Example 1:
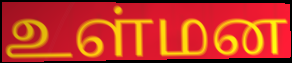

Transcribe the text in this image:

உள்மன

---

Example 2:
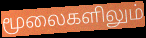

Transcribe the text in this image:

மூலைகளிலும்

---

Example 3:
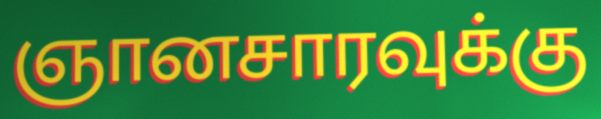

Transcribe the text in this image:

ஞானசாரவுக்கு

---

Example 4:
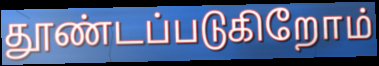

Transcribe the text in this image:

தூண்டப்படுகிறோம்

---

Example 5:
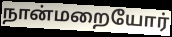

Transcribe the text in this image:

நான்மறையோர்